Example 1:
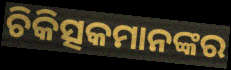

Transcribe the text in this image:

ଚିକିତ୍ସକମାନଙ୍କର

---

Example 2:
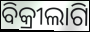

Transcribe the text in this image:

ବିକ୍ରୀଲାଗି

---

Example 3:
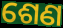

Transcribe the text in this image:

ଶେଣ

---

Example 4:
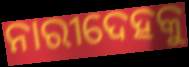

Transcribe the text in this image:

ନାରୀଦେହକୁ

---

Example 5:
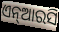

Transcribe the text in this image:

ଏନ୍ଆରସି